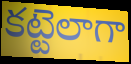
కట్టెలాగా